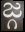
జ్గ